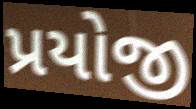
પ્રયોજી